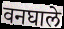
वनघाले